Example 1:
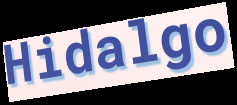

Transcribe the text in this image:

Hidalgo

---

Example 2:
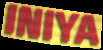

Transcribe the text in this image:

INIYA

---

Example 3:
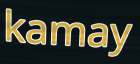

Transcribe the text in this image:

kamay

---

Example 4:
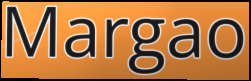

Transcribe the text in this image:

Margao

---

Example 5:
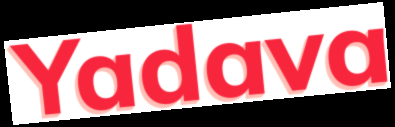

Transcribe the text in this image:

Yadava